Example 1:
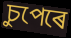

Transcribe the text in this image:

চুপেৰে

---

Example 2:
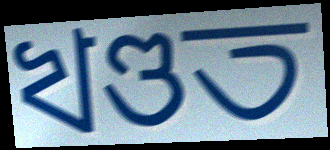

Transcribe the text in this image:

খণ্ডত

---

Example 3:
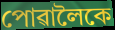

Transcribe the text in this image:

পোৱালৈকে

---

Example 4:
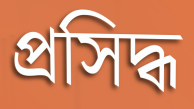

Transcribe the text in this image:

প্ৰসিদ্ধ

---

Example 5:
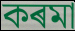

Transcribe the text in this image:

কৰমা